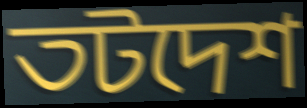
তটদেশ